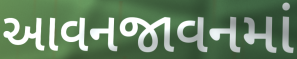
આવનજાવનમાં